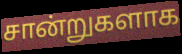
சான்றுகளாக